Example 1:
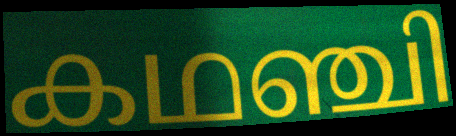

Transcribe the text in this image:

കഥഞ്ചി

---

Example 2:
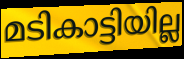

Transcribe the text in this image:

മടികാട്ടിയില്ല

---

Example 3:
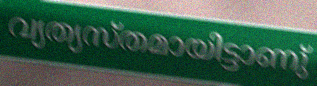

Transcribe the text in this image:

വ്യത്യസ്തമായിട്ടാണു്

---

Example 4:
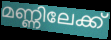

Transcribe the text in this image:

മണ്ണിലേക്ക്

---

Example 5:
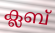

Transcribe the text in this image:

ക്ലബ്